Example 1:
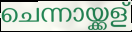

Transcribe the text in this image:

ചെന്നായ്ക്കള്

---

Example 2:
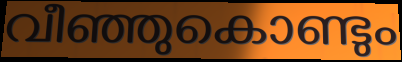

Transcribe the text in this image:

വീഞ്ഞുകൊണ്ടും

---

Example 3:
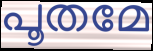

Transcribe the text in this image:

പൂതമേ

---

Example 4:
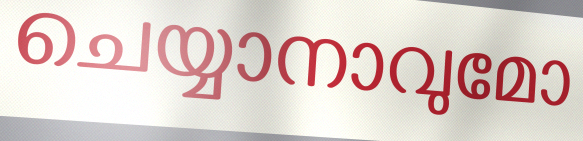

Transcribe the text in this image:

ചെയ്യാനാവുമോ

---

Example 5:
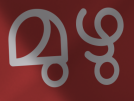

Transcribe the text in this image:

മുഴു